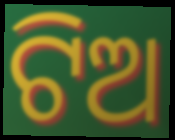
ଟିଅ